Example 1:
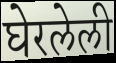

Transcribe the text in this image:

घेरलेली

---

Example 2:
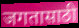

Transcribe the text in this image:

जगतासाठी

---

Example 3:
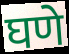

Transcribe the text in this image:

घणे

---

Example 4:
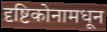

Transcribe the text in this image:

दृष्टिकोनामधून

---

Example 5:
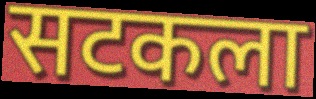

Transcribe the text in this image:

सटकला